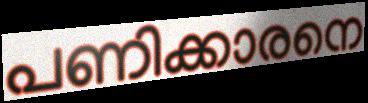
പണിക്കാരനെ